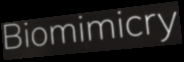
Biomimicry